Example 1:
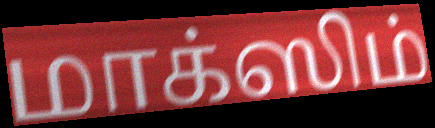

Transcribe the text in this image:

மாக்ஸிம்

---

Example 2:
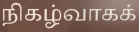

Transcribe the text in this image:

நிகழ்வாகக்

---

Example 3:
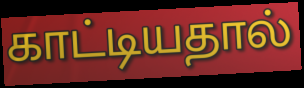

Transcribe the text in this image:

காட்டியதால்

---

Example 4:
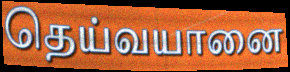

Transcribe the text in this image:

தெய்வயானை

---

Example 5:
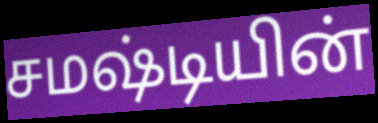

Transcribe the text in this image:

சமஷ்டியின்